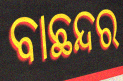
ବାଛନ୍ଦର